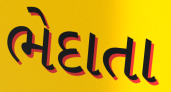
ભેદાતા